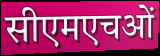
सीएमएचओं